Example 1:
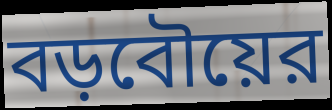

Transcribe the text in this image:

বড়বৌয়ের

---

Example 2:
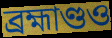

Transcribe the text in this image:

ব্রহ্মাণ্ডও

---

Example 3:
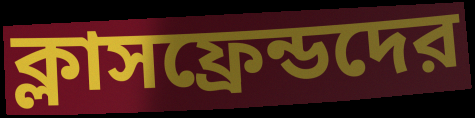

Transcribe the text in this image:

ক্লাসফ্রেন্ডদের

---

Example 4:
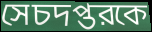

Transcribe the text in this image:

সেচদপ্তরকে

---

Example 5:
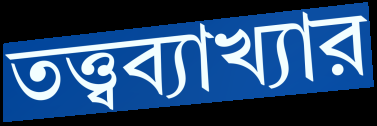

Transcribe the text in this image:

তত্ত্বব্যাখ্যার